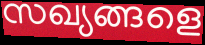
സഖ്യങ്ങളെ